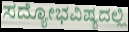
ಸದ್ಯೋಭವಿಷ್ಯದಲ್ಲಿ